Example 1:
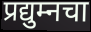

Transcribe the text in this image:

प्रद्युम्नचा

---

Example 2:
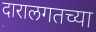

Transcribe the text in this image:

दारालगतच्या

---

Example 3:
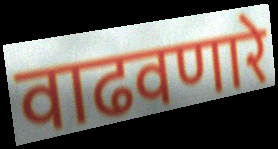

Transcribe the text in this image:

वाढवणारे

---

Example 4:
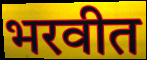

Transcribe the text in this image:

भरवीत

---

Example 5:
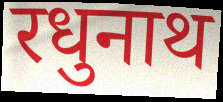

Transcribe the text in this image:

रधुनाथ